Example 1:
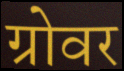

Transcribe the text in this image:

ग्रोवर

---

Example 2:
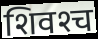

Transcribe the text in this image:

शिवश्च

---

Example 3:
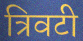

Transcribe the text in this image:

त्रिवटी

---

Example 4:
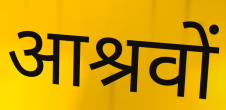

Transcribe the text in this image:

आश्रवों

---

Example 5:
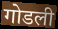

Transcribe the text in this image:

गोडली